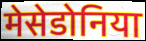
मेसेडोनिया